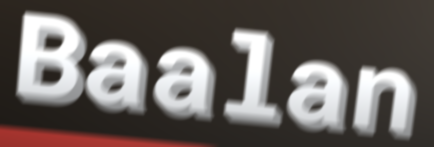
Baalan